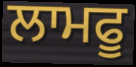
ਲਾਮਫੂ